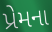
પ્રેમના